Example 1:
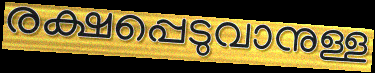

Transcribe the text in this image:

രക്ഷപ്പെടുവാനുള്ള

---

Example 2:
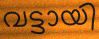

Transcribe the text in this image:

വട്ടായി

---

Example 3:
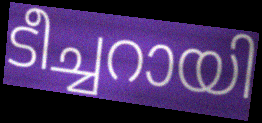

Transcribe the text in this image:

ടീച്ചറായി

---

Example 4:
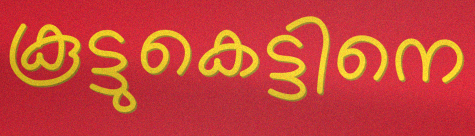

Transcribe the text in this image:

കൂട്ടുകെട്ടിനെ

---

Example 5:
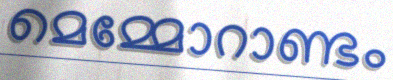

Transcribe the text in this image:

മെമ്മോറാണ്ടം